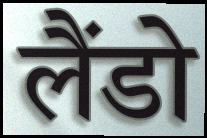
लैंडो